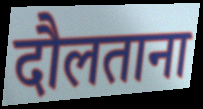
दौलताना